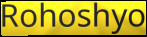
Rohoshyo